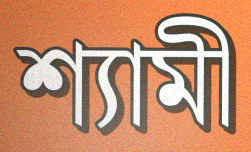
শ্যামী